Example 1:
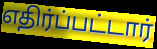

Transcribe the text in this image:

எதிர்ப்பட்டார்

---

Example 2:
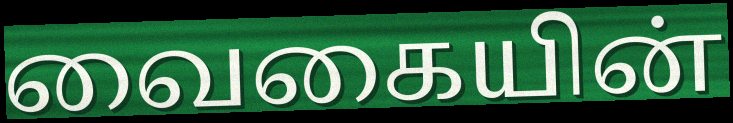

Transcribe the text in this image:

வைகையின்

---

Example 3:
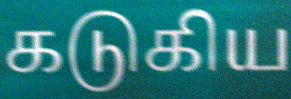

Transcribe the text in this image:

கடுகிய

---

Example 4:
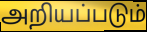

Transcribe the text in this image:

அறியப்படும்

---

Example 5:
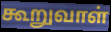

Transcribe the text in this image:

கூறுவாள்